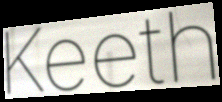
Keeth